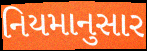
નિયમાનુસાર